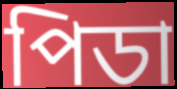
পিডা